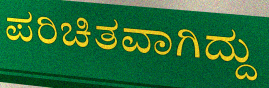
ಪರಿಚಿತವಾಗಿದ್ದು